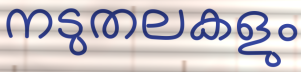
നടുതലകളും